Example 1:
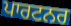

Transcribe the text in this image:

ਪਾਰਟਨਰ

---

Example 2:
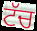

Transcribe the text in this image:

ਟੱਚ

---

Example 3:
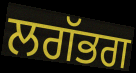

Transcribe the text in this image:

ਲਗੱਭਗ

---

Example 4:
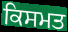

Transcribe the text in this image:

ਕਿਸਮਤ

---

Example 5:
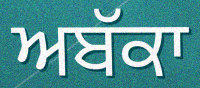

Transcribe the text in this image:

ਅਬੱਕਾ